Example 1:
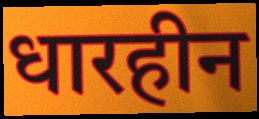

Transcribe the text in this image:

धारहीन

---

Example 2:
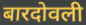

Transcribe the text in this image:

बारदोवली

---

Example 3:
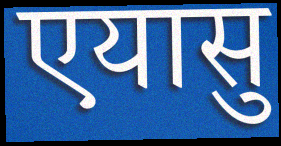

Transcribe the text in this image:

एयासु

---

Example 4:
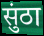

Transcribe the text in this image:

सुंठा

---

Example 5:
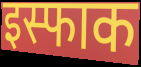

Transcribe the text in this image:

इस्फाक